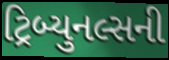
ટ્રિબ્યુનલ્સની